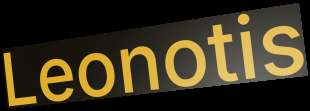
Leonotis